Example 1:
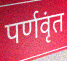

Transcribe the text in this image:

पर्णवृंत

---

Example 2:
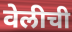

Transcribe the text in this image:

वेलीची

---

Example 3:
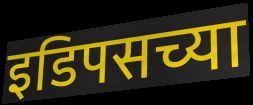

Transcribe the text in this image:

इडिपसच्या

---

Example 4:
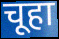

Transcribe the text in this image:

चूहा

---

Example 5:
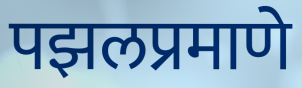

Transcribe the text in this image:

पझलप्रमाणे